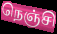
நெஞ்சி